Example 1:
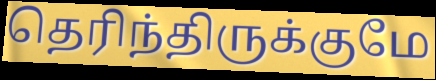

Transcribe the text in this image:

தெரிந்திருக்குமே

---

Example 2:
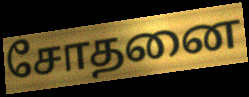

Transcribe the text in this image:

சோதனை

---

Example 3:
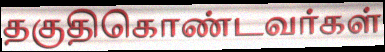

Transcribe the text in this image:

தகுதிகொண்டவர்கள்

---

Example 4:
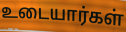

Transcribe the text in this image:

உடையார்கள்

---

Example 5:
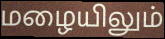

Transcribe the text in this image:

மழையிலும்